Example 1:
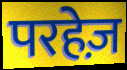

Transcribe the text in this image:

परहेज़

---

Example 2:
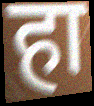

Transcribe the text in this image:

हा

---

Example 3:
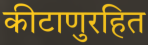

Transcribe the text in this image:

कीटाणुरहित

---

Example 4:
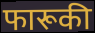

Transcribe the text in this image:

फारूकी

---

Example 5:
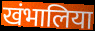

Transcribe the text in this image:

खंभालिया